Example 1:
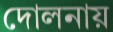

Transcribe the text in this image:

দোলনায়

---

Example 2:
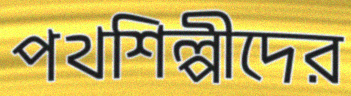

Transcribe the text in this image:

পথশিল্পীদের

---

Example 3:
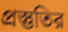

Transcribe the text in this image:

প্রস্তুতির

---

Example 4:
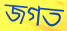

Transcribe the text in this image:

জগত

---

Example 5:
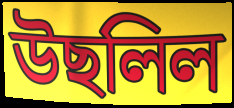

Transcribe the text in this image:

উছলিল